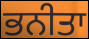
ਭਨੀਤਾ